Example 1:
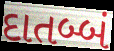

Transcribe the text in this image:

દાતબ્બં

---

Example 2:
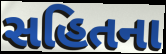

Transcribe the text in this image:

સહિતના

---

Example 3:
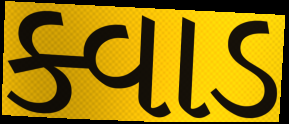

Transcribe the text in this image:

ક્વાડ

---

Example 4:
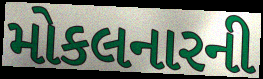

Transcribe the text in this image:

મોકલનારની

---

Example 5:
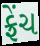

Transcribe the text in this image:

ફ્રેંચ